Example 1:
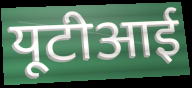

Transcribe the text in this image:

यूटीआई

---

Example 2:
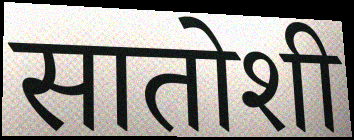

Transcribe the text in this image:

सातोशी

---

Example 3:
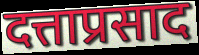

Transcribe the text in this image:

दत्ताप्रसाद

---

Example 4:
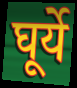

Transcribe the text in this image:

घूर्ये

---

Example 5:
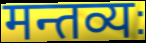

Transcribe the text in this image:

मन्तव्यः